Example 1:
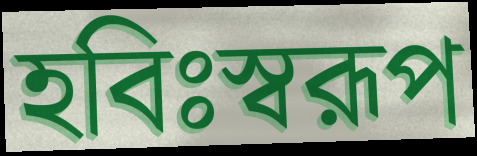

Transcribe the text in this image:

হবিঃস্বরূপ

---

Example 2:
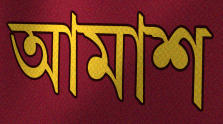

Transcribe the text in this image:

আমাশ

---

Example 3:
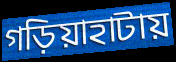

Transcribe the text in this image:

গড়িয়াহাটায়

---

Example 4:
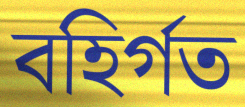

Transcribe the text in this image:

বহির্গত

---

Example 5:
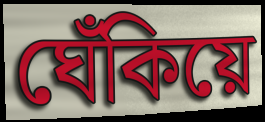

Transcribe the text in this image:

ঘেঁকিয়ে